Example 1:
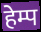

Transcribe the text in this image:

हेम्प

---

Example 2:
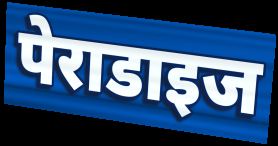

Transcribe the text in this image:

पेराडाइज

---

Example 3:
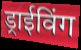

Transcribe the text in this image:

ड्राईविंग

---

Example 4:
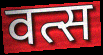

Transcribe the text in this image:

वत्स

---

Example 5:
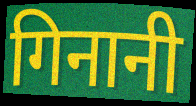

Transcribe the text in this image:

गिनानी